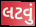
લટવું